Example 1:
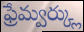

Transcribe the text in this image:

ఫ్రేమ్వర్క్లు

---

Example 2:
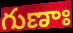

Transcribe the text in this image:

గుణాః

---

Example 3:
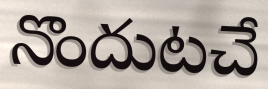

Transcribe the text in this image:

నొందుటచే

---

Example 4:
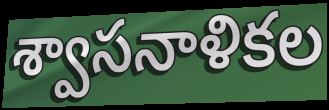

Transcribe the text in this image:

శ్వాసనాళికల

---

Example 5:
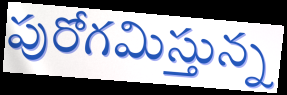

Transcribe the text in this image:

పురోగమిస్తున్న